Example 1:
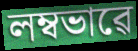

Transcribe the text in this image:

লম্বভাৱে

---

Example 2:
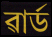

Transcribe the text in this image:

ৱাৰ্ড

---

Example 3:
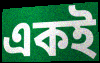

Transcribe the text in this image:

একই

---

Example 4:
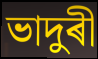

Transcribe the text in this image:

ভাদুৰী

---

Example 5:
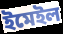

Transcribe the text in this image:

ইমেইল